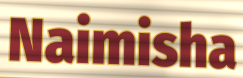
Naimisha